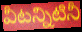
వీటన్నిటినీ